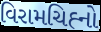
વિરામચિહ્‍નો